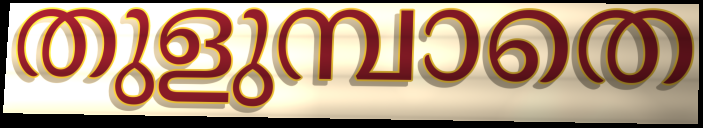
തുളുമ്പാതെ